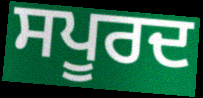
ਸਪੂਰਦ